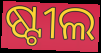
ଷ୍ଟୀଲ